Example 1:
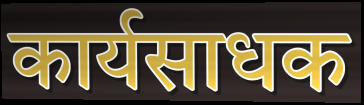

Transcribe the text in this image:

कार्यसाधक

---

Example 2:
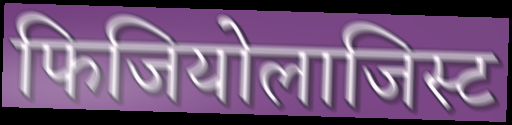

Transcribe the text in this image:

फिजियोलाजिस्ट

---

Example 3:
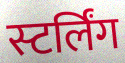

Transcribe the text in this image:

स्‍टर्लिंग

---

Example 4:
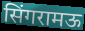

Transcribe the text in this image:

सिंगरामऊ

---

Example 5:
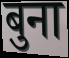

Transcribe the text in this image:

बुना